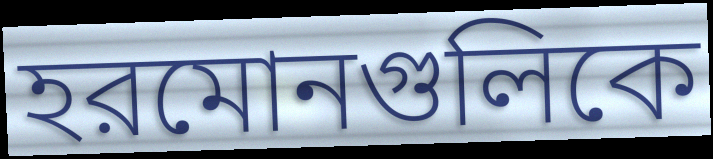
হরমোনগুলিকে